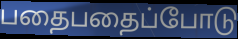
பதைபதைப்போடு